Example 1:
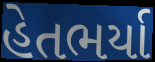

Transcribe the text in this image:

હેતભર્યા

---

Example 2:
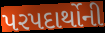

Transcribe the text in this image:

પરપદાર્થોની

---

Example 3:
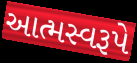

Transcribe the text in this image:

આત્મસ્વરૂપે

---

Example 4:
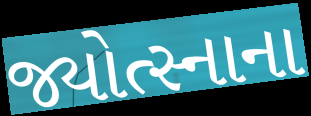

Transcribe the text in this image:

જ્યોત્સ્નાના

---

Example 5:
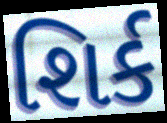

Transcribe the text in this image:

શિર્ક